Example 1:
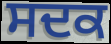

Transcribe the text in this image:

ਸਦਕ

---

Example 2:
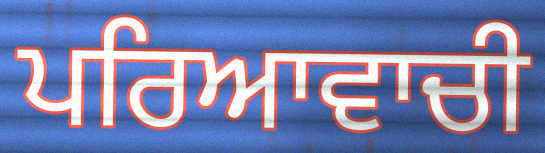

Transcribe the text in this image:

ਪਰਿਆਵਾਚੀ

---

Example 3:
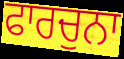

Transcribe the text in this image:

ਫਾਰਚੁਨਾ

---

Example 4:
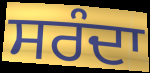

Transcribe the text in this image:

ਸਰੰਦਾ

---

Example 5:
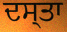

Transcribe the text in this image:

ਦਸ੍ਤਾ